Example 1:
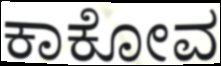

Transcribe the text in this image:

ಕಾಕೋವ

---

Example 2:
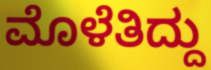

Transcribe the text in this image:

ಮೊಳೆತಿದ್ದು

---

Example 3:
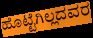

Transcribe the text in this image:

ಹೊಟ್ಟೆಗಿಲ್ಲದವರ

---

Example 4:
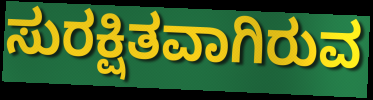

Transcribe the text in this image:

ಸುರಕ್ಷಿತವಾಗಿರುವ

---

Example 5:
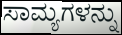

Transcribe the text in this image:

ಸಾಮ್ಯಗಳನ್ನು